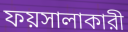
ফয়সালাকারী